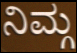
ನಿಮ್ಗ